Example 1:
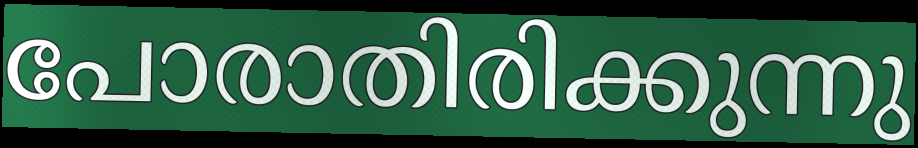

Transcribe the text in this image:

പോരാതിരിക്കുന്നു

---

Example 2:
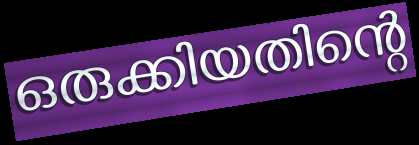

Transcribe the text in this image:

ഒരുക്കിയതിന്റെ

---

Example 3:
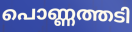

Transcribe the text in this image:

പൊണ്ണത്തടി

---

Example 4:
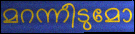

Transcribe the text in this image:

മറന്നീടുമോ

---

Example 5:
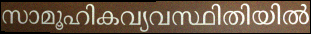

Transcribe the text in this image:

സാമൂഹികവ്യവസ്ഥിതിയിൽ